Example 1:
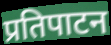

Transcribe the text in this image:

प्रतिपाटन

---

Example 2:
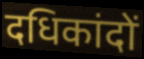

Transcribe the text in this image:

दधिकांदों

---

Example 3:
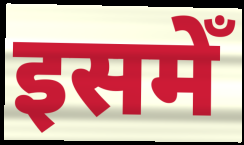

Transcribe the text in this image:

इसमेँ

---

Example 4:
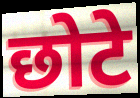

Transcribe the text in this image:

छोटे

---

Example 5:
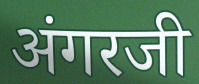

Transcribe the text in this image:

अंगरजी